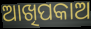
ଆଖିପକାଅ